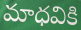
మాధవికి